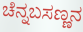
ಚೆನ್ನಬಸಣ್ಣನ